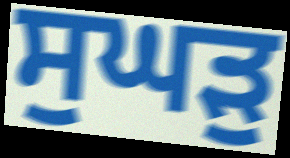
ਸੁਘੜੁ